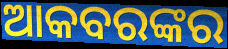
ଆକବରଙ୍କର